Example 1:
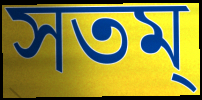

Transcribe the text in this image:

সতম্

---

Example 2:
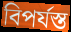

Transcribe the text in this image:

বিপৰ্যস্ত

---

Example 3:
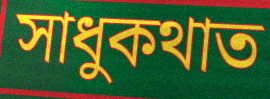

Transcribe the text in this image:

সাধুকথাত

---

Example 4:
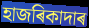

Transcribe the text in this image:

হাজৰিকাদাৰ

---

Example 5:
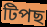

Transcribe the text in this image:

টিপছ